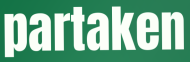
partaken